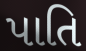
પાતિ